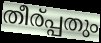
തീര്പ്പതും